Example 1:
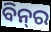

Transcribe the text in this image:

ବିନ୍‍ର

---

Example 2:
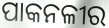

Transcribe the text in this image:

ପାକନଳୀର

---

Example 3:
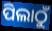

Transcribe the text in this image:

ପିଲାଠୁଁ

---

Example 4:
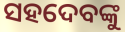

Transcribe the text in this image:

ସହଦେବଙ୍କୁ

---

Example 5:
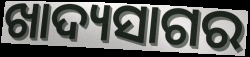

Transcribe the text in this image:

ଖାଦ୍ୟସାଗର